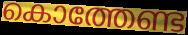
കൊത്തേണ്ട